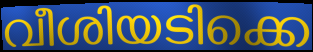
വീശിയടിക്കെ